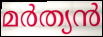
മർത്യൻ